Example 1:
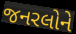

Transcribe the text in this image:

જનરલોને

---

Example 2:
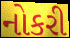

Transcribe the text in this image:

નોકરી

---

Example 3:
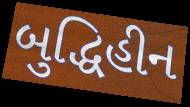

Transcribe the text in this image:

બુદ્ધિહીન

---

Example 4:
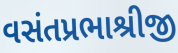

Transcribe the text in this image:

વસંતપ્રભાશ્રીજી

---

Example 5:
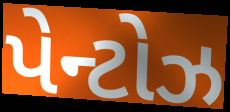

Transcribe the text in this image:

પેન્ટોઝ